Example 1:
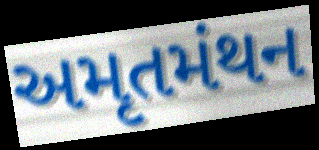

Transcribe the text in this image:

અમૃતમંથન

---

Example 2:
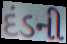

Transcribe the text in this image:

દંડની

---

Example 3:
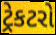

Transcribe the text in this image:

ટ્રેકટરો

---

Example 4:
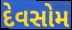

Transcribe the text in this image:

દેવસોમ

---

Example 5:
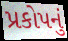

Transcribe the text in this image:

પ્રકોપનું